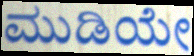
ಮುಡಿಯೇ